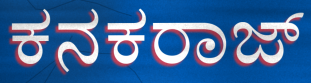
ಕನಕರಾಜ್